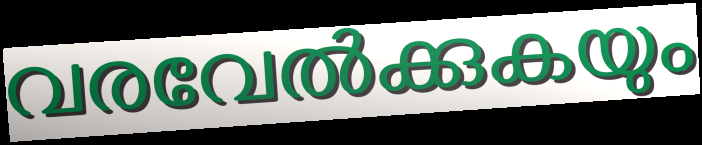
വരവേൽക്കുകയും